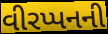
વીરપ્પનની